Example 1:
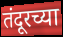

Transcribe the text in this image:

तंदूरच्या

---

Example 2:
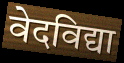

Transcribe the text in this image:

वेदविद्या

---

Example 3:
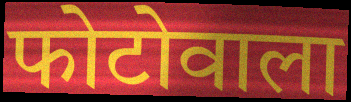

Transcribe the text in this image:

फोटोवाला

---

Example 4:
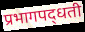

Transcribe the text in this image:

प्रभागपद्धती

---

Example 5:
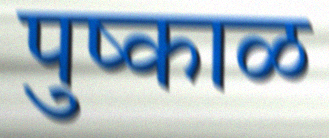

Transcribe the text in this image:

पुष्काळ